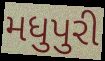
મધુપુરી